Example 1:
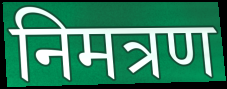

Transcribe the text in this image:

निमत्रण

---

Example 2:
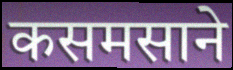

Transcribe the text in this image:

कसमसाने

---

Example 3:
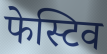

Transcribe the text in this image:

फेस्टिव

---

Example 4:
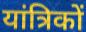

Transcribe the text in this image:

यांत्रिकों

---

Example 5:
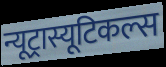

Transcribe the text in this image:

न्यूट्रास्यूटिकल्स